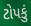
ટોપકું